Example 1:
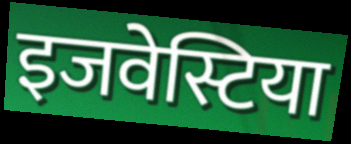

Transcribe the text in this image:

इजवेस्टिया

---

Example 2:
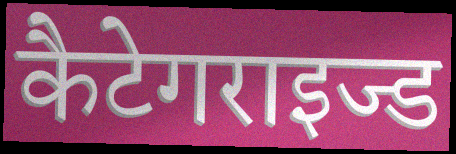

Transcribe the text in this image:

कैटेगराइज्ड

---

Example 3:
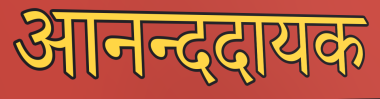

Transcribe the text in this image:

आनन्ददायक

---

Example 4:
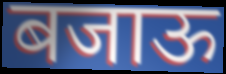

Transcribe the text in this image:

बजाऊ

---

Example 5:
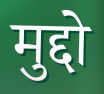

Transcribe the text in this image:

मुद्दो